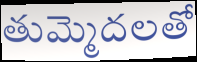
తుమ్మెదలతో